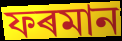
ফৰমান